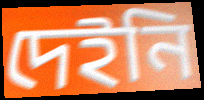
দেইনি